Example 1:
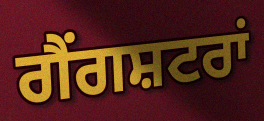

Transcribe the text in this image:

ਗੈਂਗਸ਼ਟਰਾਂ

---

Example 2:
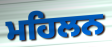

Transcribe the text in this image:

ਮਹਿਲਨ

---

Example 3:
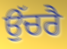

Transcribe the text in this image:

ਉੱਚਰੈ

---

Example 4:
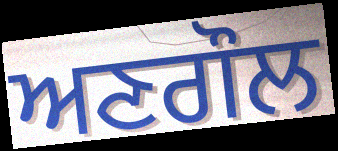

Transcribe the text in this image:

ਅਣਗੌਲ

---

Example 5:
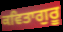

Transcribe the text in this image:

ਕਵਿਤਾਗੁਰੂ